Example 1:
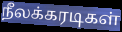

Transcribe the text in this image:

நீலக்கரடிகள்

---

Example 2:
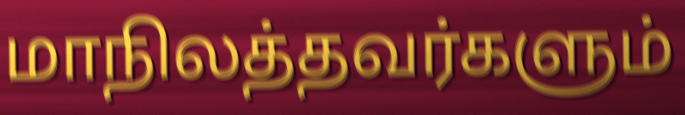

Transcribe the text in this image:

மாநிலத்தவர்களும்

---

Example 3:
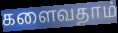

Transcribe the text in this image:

களைவதாம்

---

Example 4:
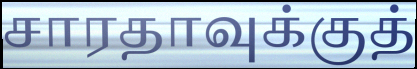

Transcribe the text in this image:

சாரதாவுக்குத்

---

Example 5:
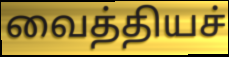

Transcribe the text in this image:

வைத்தியச்